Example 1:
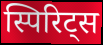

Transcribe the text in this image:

स्पिरिट्स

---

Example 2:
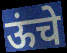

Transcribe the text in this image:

ऊंचे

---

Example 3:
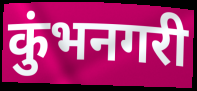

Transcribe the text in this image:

कुंभनगरी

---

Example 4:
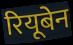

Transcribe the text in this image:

रियूबेन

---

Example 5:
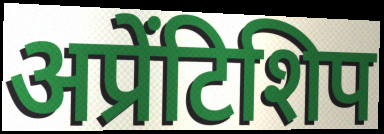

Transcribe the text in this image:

अप्रेंटिशिप